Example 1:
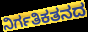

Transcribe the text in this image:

ನಿರ್ಗತಿಕತನದ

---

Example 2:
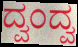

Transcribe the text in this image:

ದ್ವಂದ್ವ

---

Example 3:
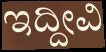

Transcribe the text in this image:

ಇದ್ದೀವಿ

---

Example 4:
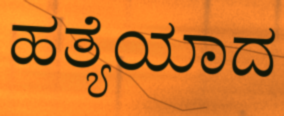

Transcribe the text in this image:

ಹತ್ಯೆಯಾದ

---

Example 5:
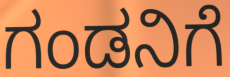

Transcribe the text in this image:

ಗಂಡನಿಗೆ